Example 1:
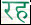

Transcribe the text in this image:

रह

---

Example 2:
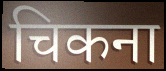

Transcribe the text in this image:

चिकना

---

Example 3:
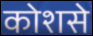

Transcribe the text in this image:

कोशसे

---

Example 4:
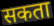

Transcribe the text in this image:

सकता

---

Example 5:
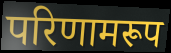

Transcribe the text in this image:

परिणामरूप